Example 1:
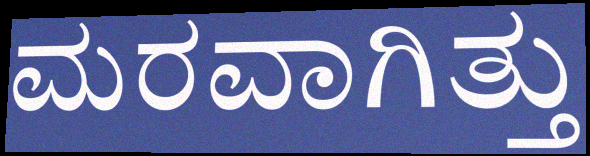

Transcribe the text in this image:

ಮರವಾಗಿತ್ತು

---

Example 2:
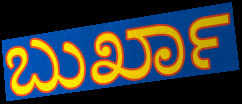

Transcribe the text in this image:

ಬುರ್ಖಾ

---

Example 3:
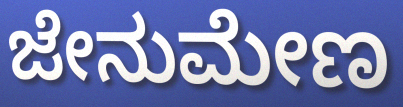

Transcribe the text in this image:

ಜೇನುಮೇಣ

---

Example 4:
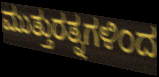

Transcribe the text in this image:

ಮುತ್ತುರತ್ನಗಳಿಂದ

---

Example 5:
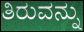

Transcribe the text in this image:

ತಿರುವನ್ನು